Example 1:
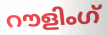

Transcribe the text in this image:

റൗളിംഗ്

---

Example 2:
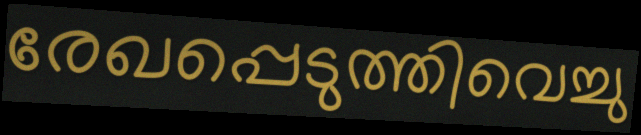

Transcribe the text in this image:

രേഖപ്പെടുത്തിവെച്ചു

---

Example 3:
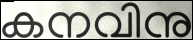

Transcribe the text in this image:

കനവിനു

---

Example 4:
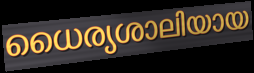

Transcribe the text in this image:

ധൈര്യശാലിയായ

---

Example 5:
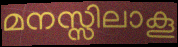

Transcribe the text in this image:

മനസ്സിലാകൂ